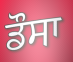
ਡੌਸਾ